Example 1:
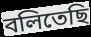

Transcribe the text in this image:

বলিতেছি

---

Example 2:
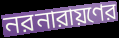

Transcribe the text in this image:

নরনারায়ণের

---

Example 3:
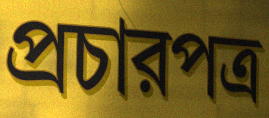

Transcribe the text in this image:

প্রচারপত্র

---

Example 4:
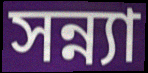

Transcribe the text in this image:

সন্ন্যা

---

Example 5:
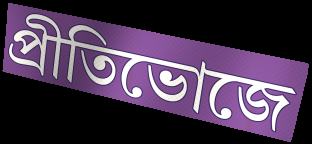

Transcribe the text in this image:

প্রীতিভোজে